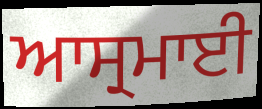
ਆਸ੍ਰਮਾਈ